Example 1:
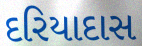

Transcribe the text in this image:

દરિયાદાસ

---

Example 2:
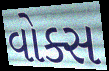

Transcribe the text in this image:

વોક્સ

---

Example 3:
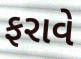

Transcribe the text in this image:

ફરાવે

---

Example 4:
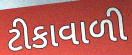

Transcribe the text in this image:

ટીકાવાળી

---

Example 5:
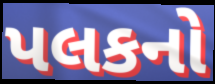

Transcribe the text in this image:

પલકનો